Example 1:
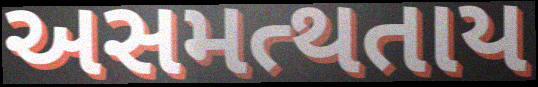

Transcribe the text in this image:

અસમત્થતાય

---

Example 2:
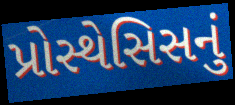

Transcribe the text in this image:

પ્રોસ્થેસિસનું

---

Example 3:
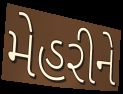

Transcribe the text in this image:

મેહરીને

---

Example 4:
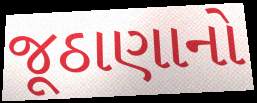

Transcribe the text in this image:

જૂઠાણાનો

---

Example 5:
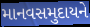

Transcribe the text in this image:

માનવસમુદાયને